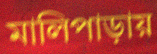
মালিপাড়ায়